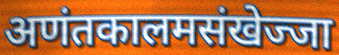
अणंतकालमसंखेज्जा